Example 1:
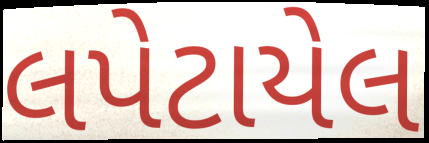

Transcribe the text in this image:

લપેટાયેલ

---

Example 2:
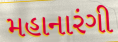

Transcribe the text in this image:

મહાનારંગી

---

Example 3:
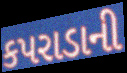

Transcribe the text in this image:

કપરાડાની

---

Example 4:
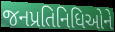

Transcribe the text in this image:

જનપ્રતિનિધિઓને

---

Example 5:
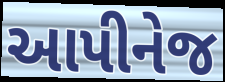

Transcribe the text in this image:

આપીનેજ